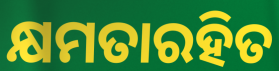
କ୍ଷମତାରହିତ